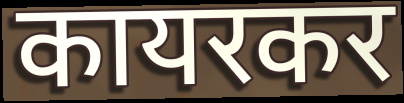
कायरकर